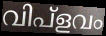
വിപ്ളവം